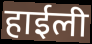
हाईली